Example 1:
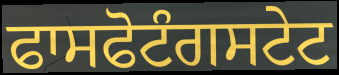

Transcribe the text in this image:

ਫਾਸਫੋਟੰਗਸਟੇਟ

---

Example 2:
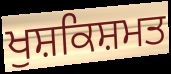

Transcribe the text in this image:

ਖੁਸ਼ਕਿਸ਼ਮਤ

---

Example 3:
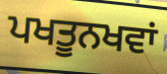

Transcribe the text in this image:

ਪਖਤੂਨਖਵਾਂ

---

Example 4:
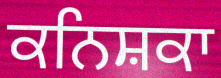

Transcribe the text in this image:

ਕਨਿਸ਼ਕਾ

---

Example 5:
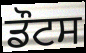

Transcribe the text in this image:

ਡੌਟਸ